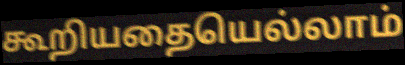
கூறியதையெல்லாம்